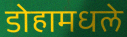
डोहामधले